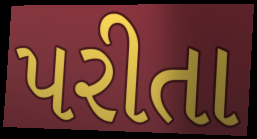
પરીતા